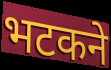
भटकने